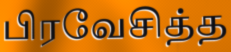
பிரவேசித்த